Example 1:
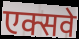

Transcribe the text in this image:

एक्सवे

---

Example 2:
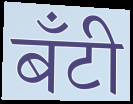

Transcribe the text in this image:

बँटी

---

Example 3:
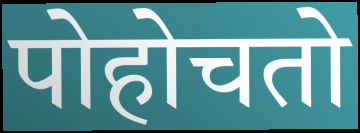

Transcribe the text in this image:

पोहोचतो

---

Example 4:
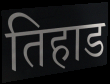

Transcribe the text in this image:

तिहाड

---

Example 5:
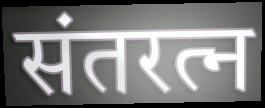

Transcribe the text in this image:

संतरत्न